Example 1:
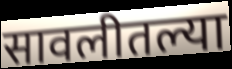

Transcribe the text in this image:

सावलीतल्या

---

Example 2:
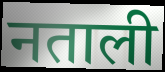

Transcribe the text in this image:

नताली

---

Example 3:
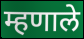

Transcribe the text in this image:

म्हणाले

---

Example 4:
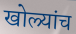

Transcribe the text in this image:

खोल्यांच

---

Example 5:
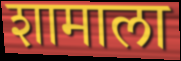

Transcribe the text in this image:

शामाला